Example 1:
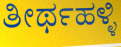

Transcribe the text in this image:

ತೀರ್ಥಹಳ್ಳಿ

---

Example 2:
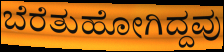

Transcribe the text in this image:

ಬೆರೆತುಹೋಗಿದ್ದವು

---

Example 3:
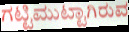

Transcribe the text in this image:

ಗಟ್ಟಿಮುಟ್ಟಾಗಿರುವ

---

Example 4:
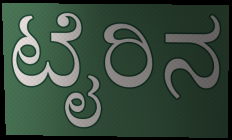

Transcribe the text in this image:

ಟೈರಿನ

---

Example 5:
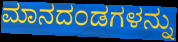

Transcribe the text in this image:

ಮಾನದಂಡಗಳನ್ನು